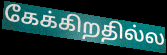
கேக்கிறதில்ல